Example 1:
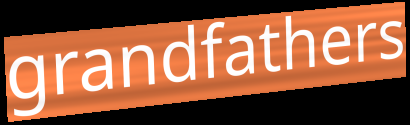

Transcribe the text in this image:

grandfathers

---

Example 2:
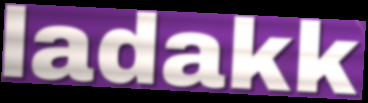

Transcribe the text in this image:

ladakk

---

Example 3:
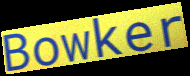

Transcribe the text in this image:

Bowker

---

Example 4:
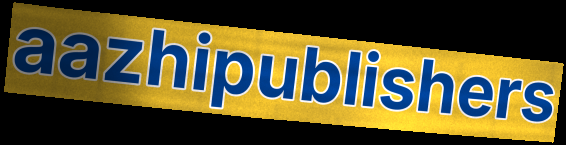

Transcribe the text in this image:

aazhipublishers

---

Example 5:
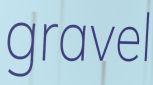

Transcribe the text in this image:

gravel